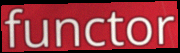
functor